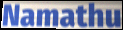
Namathu